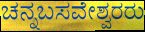
ಚನ್ನಬಸವೇಶ್ವರರು